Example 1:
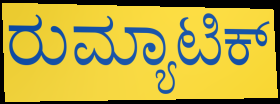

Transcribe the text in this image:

ರುಮ್ಯಾಟಿಕ್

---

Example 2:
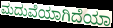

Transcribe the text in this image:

ಮದುವೆಯಾಗಿದೆಯಾ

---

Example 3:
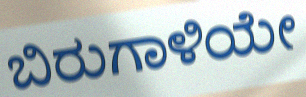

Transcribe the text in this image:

ಬಿರುಗಾಳಿಯೇ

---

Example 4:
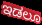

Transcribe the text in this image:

ಇಡಲೂ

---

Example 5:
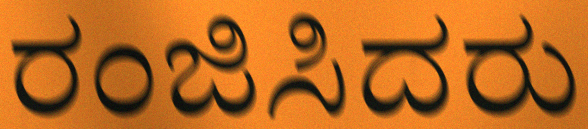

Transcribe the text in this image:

ರಂಜಿಸಿದರು